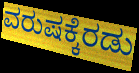
ವರುಷಕ್ಕೆರಡು